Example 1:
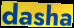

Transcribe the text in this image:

dasha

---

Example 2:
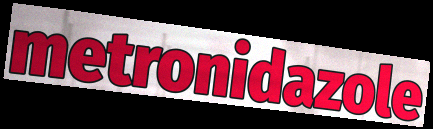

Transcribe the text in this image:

metronidazole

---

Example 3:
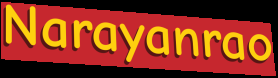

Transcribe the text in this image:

Narayanrao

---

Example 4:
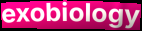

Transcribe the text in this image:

exobiology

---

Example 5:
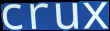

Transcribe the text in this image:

crux